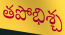
తపోభిశ్చ